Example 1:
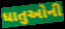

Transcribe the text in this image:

ધાતુઓની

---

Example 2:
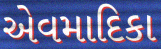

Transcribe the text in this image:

એવમાદિકા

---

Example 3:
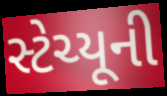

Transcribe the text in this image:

સ્ટેચ્યૂની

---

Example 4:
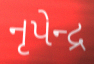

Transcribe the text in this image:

નૃપેન્દ્ર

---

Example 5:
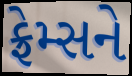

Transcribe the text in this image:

ફ્રેમ્સને